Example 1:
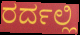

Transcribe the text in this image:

ರರ್ದಲ್ಲಿ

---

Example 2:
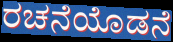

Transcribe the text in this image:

ರಚನೆಯೊಡನೆ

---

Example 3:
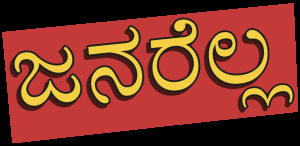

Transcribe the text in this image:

ಜನರೆಲ್ಲ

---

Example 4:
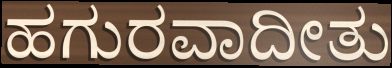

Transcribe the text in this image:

ಹಗುರವಾದೀತು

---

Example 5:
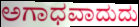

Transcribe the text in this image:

ಅಗಾಧವಾದುದು